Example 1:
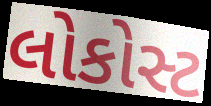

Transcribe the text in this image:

લોકોસ્ટ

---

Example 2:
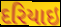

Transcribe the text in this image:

દરિયાઇ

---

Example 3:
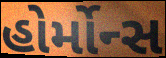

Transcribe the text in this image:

હોર્મોન્સ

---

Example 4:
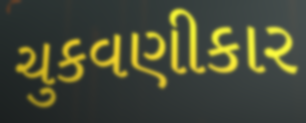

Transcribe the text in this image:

ચુકવણીકાર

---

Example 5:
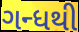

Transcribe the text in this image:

ગન્ધથી